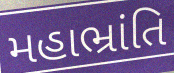
મહાભ્રાંતિ